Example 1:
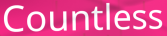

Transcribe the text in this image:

Countless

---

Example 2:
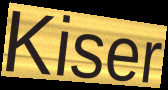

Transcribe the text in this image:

Kiser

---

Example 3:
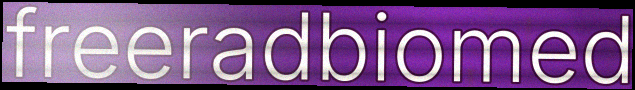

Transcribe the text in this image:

freeradbiomed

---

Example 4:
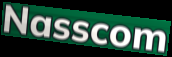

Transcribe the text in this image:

Nasscom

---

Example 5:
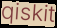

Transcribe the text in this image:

qiskit